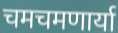
चमचमणार्या